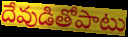
దేవుడితోపాటు